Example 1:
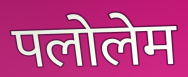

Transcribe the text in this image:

पलोलेम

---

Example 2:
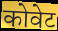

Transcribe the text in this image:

कोवेट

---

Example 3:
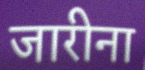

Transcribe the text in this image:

जारीना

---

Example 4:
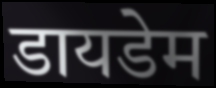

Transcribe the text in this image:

डायडेम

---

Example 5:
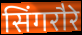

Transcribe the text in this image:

सिंगरौरे